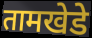
तामखेडे